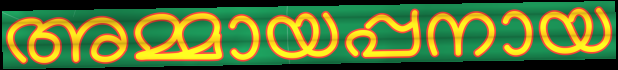
അമ്മായപ്പനായ